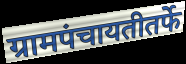
ग्रामपंचायतीतर्फे